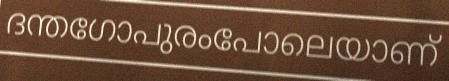
ദന്തഗോപുരംപോലെയാണ്